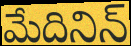
మేదినిన్